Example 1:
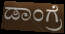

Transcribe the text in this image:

ಡಾಂಗ್ರೆ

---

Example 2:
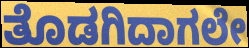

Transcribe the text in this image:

ತೊಡಗಿದಾಗಲೇ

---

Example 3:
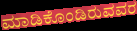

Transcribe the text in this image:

ಮಾಡಿಕೊಂಡಿರುವವರ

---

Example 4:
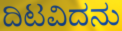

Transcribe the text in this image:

ದಿಟವಿದನು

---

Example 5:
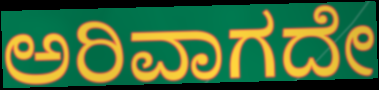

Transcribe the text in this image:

ಅರಿವಾಗದೇ